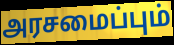
அரசமைப்பும்